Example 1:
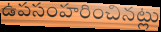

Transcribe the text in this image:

ఉపసంహరించినట్లు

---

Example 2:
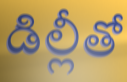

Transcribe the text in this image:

డిల్లీతో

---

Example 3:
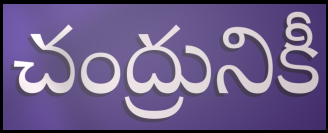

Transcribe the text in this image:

చంద్రునికీ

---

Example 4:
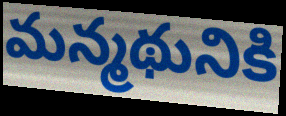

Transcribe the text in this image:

మన్మథునికి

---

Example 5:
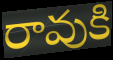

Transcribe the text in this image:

రావుకి